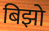
बिझो